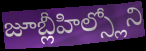
జూబ్లీహిల్స్లోని